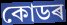
কোডৰ